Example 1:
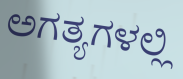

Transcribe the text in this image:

ಅಗತ್ಯಗಳಲ್ಲಿ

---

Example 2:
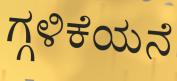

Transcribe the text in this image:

ಗ್ಗಳಿಕೆಯನೆ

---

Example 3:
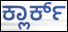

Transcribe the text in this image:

ಕ್ಲಾರ್ಕ್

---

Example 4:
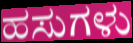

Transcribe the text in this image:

ಹಸುಗಳು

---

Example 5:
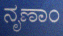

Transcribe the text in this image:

ನೃಣಾಂ